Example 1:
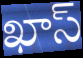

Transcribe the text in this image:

ఖాస్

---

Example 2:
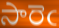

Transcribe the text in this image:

సారెఁ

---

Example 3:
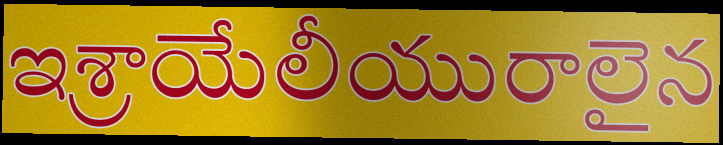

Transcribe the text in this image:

ఇశ్రాయేలీయురాలైన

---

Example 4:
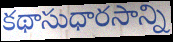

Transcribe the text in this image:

కథాసుధారసాన్ని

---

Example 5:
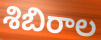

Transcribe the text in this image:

శిబిరాల